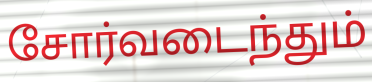
சோர்வடைந்தும்